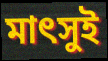
মাৎসুই